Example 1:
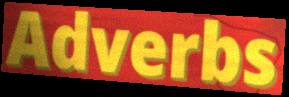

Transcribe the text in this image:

Adverbs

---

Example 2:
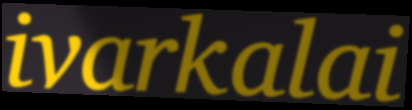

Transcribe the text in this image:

ivarkalai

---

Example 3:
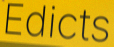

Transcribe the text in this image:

Edicts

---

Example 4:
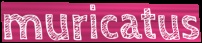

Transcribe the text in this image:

muricatus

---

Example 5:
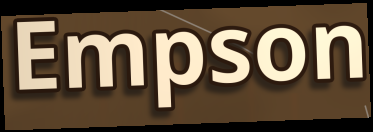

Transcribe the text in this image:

Empson